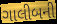
ગાલીબની